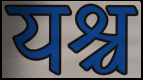
यश्च